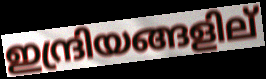
ഇന്ദ്രിയങ്ങളില്